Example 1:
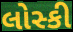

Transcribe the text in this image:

લોસ્કી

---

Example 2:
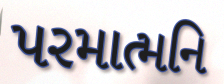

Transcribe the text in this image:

પરમાત્મનિ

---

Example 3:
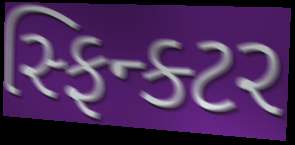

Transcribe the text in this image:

સ્ફિન્ક્ટર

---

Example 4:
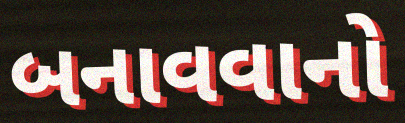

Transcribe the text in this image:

બનાવવાનો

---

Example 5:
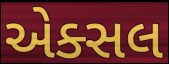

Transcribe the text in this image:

એક્સલ